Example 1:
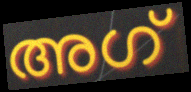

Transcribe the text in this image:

അഗ്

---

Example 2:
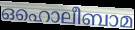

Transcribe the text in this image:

ഒഹൊലീബാമ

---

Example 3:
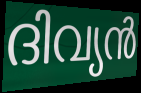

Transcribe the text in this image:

ദിവ്യൻ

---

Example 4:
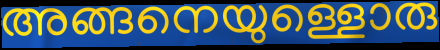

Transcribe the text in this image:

അങ്ങനെയുള്ളൊരു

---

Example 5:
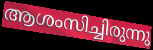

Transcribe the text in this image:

ആശംസിച്ചിരുന്നു